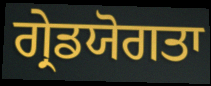
ਗ੍ਰੇਡਯੋਗਤਾ